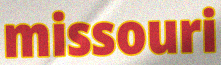
missouri